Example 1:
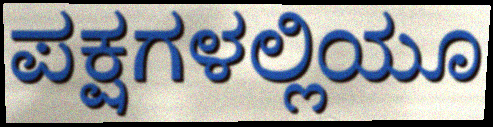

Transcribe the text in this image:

ಪಕ್ಷಗಳಲ್ಲಿಯೂ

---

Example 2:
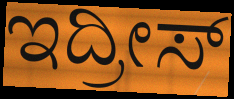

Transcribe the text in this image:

ಇದ್ರೀಸ್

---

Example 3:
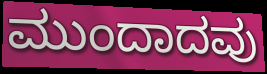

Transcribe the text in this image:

ಮುಂದಾದವು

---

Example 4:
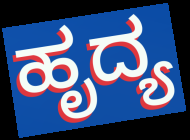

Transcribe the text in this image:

ಹೃದ್ಯ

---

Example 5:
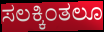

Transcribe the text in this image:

ಸಲಕ್ಕಿಂತಲೂ